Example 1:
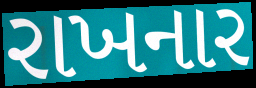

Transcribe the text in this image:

રાખનાર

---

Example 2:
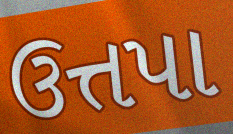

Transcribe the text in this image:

ઉત્તપા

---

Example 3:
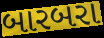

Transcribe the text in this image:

બારબરા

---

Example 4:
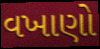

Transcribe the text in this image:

વખાણો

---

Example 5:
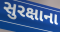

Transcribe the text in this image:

સુરક્ષાના